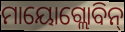
ମାୟୋଗ୍ଲୋବିନ୍